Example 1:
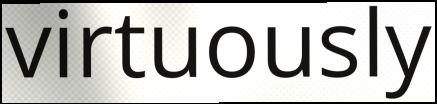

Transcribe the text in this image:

virtuously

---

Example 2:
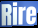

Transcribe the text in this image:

Rire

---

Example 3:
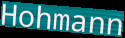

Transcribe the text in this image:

Hohmann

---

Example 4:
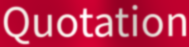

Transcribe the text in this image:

Quotation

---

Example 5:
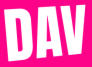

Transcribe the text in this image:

DAV